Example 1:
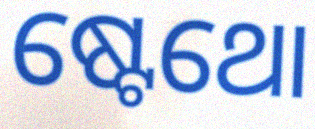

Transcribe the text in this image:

ଷ୍ଟେଥୋ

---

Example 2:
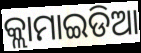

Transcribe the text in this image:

କ୍ଲାମାଇଡିଆ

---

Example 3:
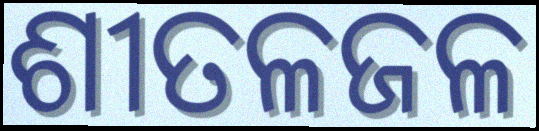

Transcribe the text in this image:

ଶୀତଳଜଳ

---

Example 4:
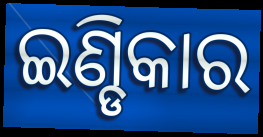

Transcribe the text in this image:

ଇଣ୍ଡିକାର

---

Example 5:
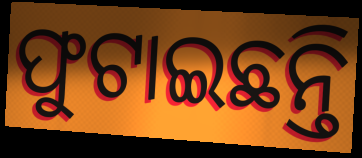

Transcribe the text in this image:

ଫୁଟାଇଛନ୍ତି